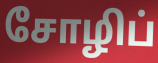
சோழிப்